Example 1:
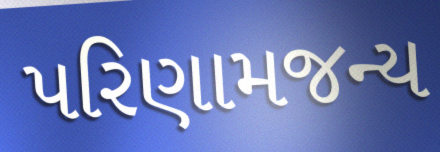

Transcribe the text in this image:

પરિણામજન્ય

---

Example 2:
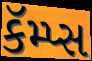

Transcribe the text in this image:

કૅમ્પ્સ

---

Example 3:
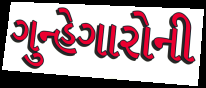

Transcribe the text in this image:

ગુન્હેગારોની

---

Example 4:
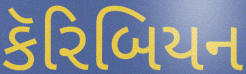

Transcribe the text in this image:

કૅરિબિયન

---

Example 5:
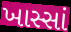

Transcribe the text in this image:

ખાસ્સાં